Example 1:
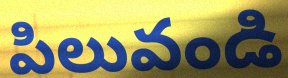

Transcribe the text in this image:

పిలువండి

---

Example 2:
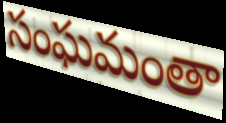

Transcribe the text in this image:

సంఘమంతా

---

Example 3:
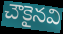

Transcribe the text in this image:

చౌకైనవి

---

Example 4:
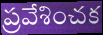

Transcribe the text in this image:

ప్రవేశించక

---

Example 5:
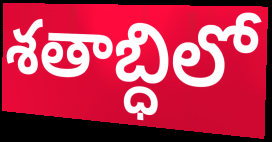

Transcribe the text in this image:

శతాబ్ధిలో